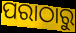
ପରାଠାରୁ